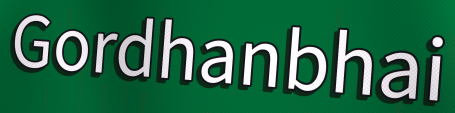
Gordhanbhai